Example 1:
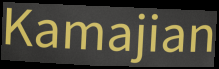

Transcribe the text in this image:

Kamajian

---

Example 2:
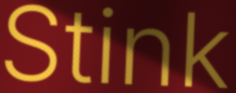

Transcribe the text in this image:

Stink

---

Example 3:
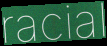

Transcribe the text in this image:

racial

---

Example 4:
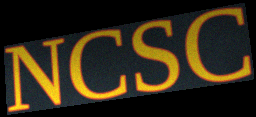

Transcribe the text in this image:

NCSC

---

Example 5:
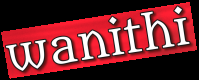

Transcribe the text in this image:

wanithi